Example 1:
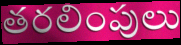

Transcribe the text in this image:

తరలింపులు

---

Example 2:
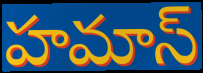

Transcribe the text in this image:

హమాస్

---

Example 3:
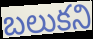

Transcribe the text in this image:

బలుకని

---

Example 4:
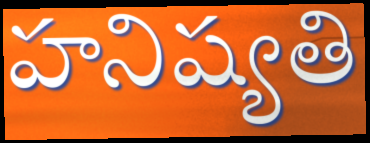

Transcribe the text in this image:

హనిష్యతి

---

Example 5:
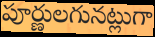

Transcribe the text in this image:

పూర్ణులగునట్లుగా